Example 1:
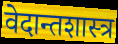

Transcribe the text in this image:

वेदान्तशास्त्र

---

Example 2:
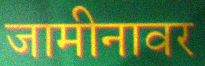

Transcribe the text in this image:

जामीनावर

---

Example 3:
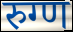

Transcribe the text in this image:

रुग्ण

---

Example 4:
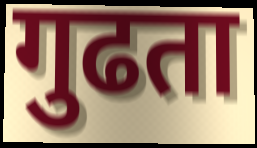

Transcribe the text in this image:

गुढता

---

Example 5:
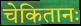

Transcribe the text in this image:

चेकितानः